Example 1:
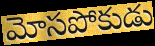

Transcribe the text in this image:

మోసపోకుడు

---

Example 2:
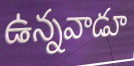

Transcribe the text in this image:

ఉన్నవాడూ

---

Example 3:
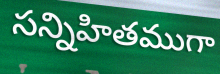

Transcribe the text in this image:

సన్నిహితముగా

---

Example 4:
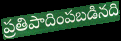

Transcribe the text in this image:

ప్రతిపాదింపబడినది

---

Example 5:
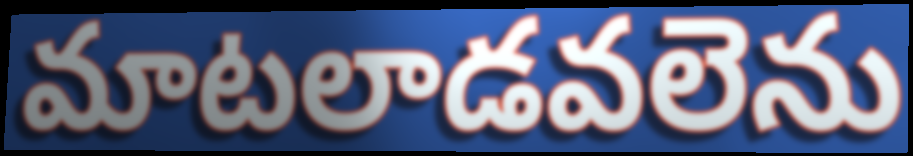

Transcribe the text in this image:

మాటలాడవలెను